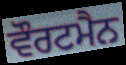
ਵੌਰਟਮੈਨ